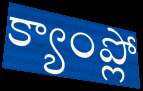
క్యాంప్లో